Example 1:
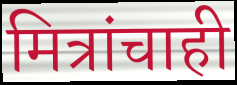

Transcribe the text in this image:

मित्रांचाही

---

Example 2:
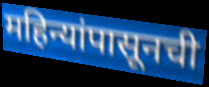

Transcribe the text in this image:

महिन्यांपासूनची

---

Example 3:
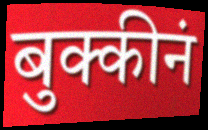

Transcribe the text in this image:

बुक्कीनं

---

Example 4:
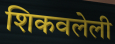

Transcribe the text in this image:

शिकवलेली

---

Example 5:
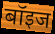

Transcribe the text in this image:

बॉइज